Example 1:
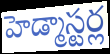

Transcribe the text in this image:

హెడ్మాస్టర్ల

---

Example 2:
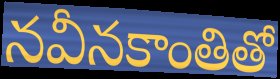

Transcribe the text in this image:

నవీనకాంతితో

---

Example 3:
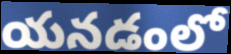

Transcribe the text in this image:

యనడంలో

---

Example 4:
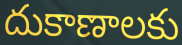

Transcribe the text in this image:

దుకాణాలకు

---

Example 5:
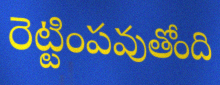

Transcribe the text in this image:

రెట్టింపవుతోంది